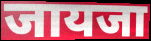
जायजा